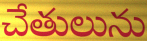
చేతులును